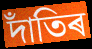
দাঁতিৰ